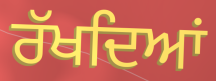
ਰੱਖਦਿਆਂ